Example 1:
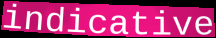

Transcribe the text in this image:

indicative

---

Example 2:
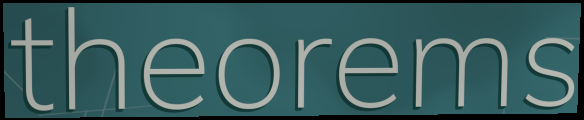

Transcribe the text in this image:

theorems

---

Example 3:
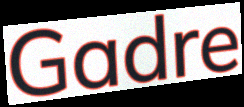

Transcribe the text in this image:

Gadre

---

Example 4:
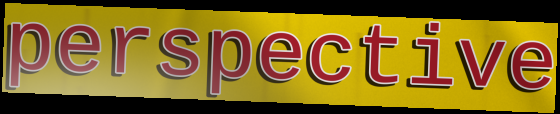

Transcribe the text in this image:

perspective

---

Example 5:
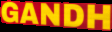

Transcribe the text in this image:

GANDH